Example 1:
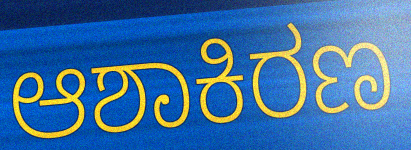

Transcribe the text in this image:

ಆಶಾಕಿರಣ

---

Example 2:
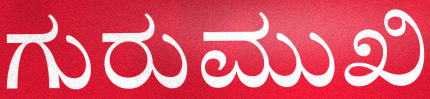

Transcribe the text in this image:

ಗುರುಮುಖಿ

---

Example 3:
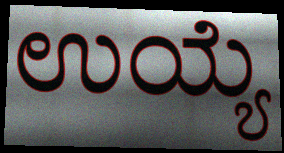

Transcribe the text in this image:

ಉಯ್ಯೆ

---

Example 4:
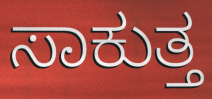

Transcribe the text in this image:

ಸಾಕುತ್ತ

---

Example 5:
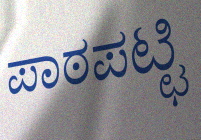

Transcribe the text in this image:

ಪಾಠಪಟ್ಟಿ